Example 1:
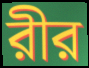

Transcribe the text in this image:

রীর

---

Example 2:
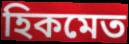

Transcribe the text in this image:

হিকমেত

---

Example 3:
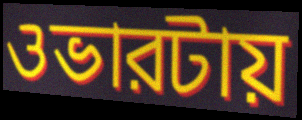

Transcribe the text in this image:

ওভারটায়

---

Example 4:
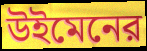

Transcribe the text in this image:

উইমেনের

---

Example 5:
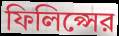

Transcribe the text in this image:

ফিলিপ্সের